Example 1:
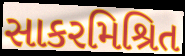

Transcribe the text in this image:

સાકરમિશ્રિત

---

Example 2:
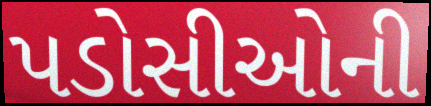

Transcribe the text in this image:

પડોસીઓની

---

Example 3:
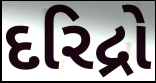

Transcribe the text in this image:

દરિદ્રો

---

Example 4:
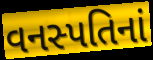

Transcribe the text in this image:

વનસ્પતિનાં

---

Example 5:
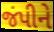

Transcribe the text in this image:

જંપીને